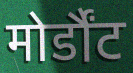
मोर्डौंट